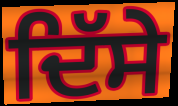
ਦਿੱਸੇ